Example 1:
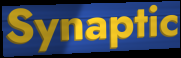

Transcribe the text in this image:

Synaptic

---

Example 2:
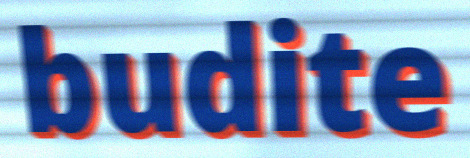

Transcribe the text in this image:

budite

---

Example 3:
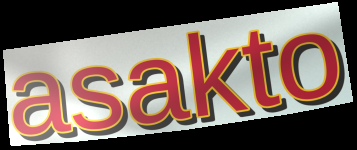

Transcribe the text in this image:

asakto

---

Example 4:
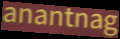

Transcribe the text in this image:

anantnag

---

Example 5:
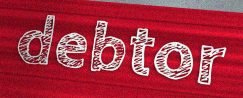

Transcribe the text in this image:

debtor